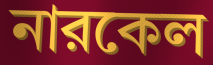
নারকেল